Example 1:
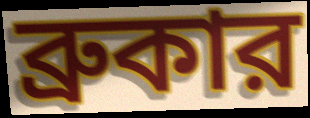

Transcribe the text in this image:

ব্রুকার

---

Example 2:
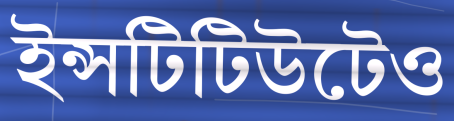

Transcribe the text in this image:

ইন্সটিটিউটেও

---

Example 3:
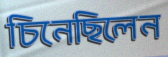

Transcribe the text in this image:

চিনেছিলেন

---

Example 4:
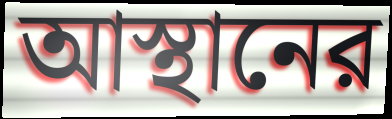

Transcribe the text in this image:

আস্থানের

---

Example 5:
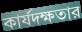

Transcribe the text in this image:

কার্যদক্ষতার